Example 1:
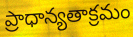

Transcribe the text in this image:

ప్రాధాన్యతాక్రమం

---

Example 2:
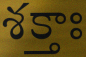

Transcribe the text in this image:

శక్తాః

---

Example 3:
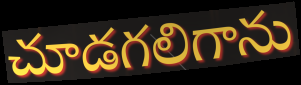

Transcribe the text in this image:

చూడగలిగాను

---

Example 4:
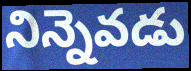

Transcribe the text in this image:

నిన్నెవడు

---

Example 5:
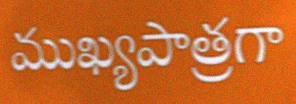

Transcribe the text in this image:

ముఖ్యపాత్రగా